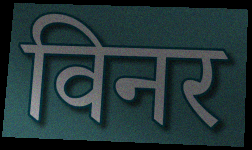
विनर